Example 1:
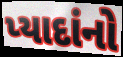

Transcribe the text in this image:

પ્યાદાંનો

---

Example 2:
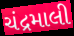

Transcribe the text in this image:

ચંદ્રમાલી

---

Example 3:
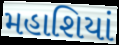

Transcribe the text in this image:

મહાશિયાં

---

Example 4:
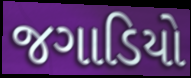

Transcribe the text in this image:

જગાડિયો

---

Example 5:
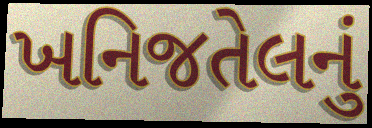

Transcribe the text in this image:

ખનિજતેલનું